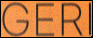
GERI